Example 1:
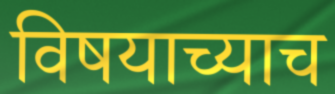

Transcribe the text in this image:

विषयाच्याच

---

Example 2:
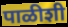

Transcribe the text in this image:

पाळीशी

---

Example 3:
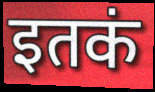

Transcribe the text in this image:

इतकं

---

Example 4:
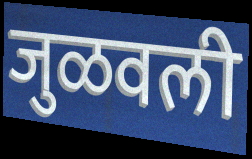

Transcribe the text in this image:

जुळवली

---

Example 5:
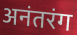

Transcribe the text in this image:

अनंतरंग